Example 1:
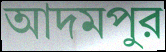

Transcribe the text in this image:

আদমপুর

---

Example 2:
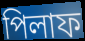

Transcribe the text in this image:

পিলাফ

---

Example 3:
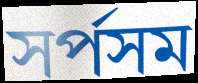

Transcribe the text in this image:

সর্পসম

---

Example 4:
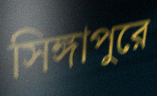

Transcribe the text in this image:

সিঙ্গাপুরে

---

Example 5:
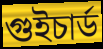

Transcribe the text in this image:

গুইচার্ড